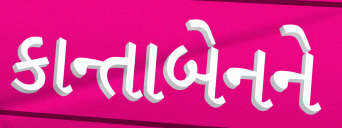
કાન્તાબેનને